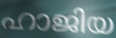
ഹാജിയ